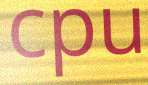
cpu